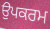
ਉਪਕਰਮ